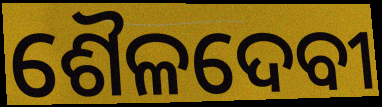
ଶୈଳଦେବୀ